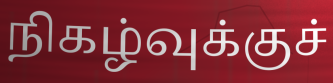
நிகழ்வுக்குச்